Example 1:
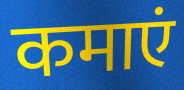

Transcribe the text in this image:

कमाएं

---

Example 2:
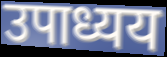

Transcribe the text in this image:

उपाध्यय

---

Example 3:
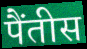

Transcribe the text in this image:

पैंतीस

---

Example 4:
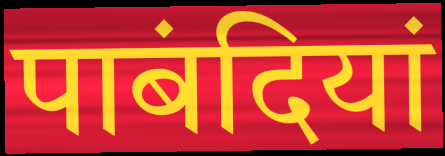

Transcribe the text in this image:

पाबंदियां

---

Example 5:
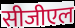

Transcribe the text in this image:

सीजीएल